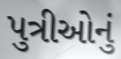
પુત્રીઓનું